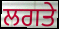
ਲਗਤੇ